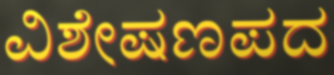
ವಿಶೇಷಣಪದ